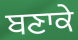
ਬਣਾਕੇ